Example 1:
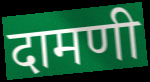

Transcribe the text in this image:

दामणी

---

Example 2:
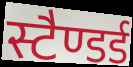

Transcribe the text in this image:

स्टैण्डर्ड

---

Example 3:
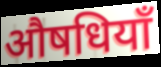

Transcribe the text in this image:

औषधियाँ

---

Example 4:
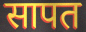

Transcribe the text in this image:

सापत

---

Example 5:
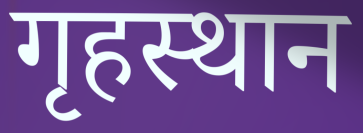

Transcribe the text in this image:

गृहस्थान